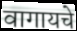
वागायचे